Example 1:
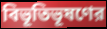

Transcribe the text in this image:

বিভূতিভূষণের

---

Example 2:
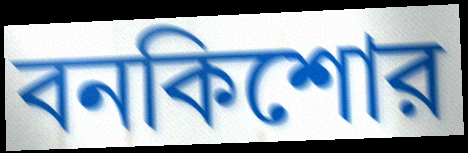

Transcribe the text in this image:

বনকিশোর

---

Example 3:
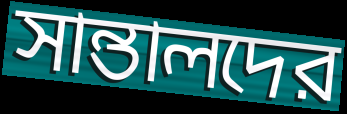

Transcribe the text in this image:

সান্তালদের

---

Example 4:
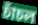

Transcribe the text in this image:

চাঁচল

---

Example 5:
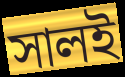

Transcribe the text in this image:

সালই